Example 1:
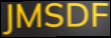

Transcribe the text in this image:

JMSDF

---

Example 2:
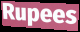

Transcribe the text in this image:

Rupees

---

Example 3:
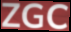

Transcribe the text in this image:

ZGC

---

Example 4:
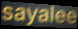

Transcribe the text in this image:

sayalee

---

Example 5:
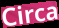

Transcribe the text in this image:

Circa